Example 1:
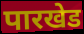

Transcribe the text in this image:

पारखेड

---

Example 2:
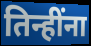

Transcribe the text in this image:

तिन्हींना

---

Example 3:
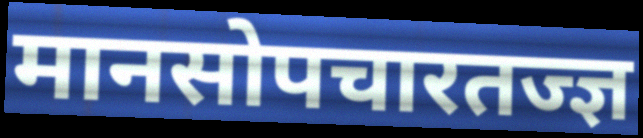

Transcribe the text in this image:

मानसोपचारतज्ज्ञ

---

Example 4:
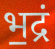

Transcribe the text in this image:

भ॒द्रं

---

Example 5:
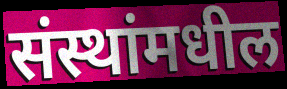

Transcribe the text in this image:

संस्थांमधील